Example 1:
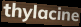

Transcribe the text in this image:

thylacine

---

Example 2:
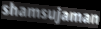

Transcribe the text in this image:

shamsujaman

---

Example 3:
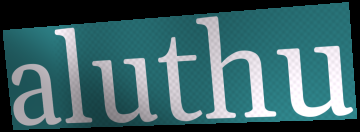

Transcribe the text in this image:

aluthu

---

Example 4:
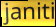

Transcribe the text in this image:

janiti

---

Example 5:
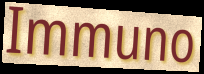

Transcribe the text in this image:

Immuno